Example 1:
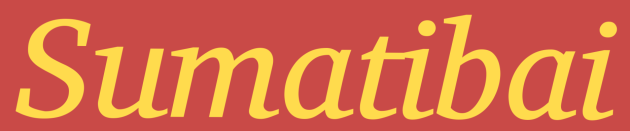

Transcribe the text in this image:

Sumatibai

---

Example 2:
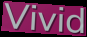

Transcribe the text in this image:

Vivid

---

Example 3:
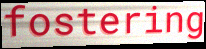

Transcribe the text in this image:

fostering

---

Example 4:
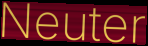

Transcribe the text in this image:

Neuter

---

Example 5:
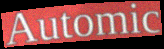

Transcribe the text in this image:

Automic